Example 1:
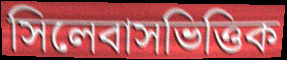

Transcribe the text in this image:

সিলেবাসভিত্তিক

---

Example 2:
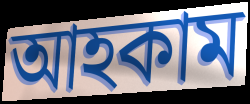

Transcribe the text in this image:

আহকাম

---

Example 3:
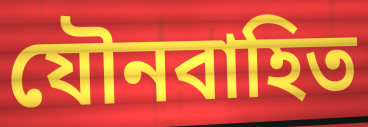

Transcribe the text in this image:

যৌনবাহিত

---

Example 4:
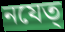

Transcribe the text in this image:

নযেত্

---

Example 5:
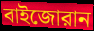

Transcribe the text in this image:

বাইজোরান